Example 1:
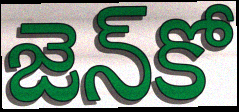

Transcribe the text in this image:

జెన్‌కో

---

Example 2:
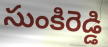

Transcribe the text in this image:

సుంకిరెడ్డి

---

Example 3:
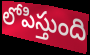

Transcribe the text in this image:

లోపిస్తుంది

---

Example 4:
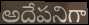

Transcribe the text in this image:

అదేపనిగా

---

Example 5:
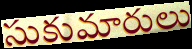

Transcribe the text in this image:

సుకుమారులు